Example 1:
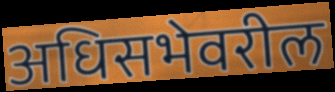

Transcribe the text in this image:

अधिसभेवरील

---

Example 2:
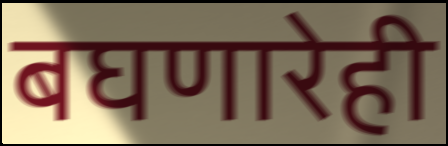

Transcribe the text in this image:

बघणारेही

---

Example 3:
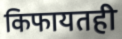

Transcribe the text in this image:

किफायतही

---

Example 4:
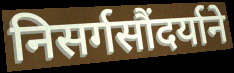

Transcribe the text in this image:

निसर्गसौंदर्याने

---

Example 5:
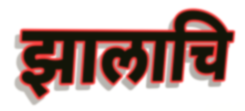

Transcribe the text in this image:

झालाचि